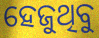
ହେଜୁଥିବୁ